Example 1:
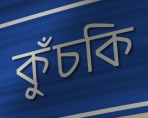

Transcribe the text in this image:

কুঁচকি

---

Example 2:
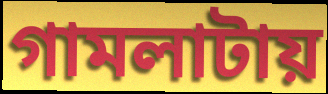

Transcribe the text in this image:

গামলাটায়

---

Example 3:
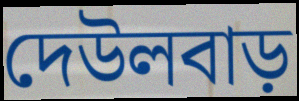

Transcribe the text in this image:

দেউলবাড়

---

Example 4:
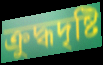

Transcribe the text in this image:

ক্রুদ্ধদৃষ্টি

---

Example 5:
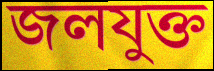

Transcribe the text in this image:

জলযুক্ত